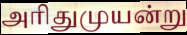
அரிதுமுயன்று